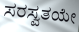
ಸರಸ್ವತಯೇ